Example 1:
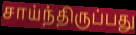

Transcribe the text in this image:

சாய்ந்திருப்பது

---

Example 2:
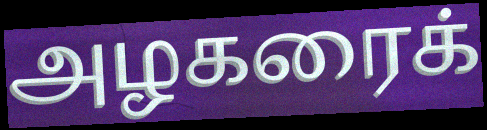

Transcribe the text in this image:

அழகரைக்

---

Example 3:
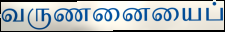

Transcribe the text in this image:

வருணனையைப்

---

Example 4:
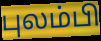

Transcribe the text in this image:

புலம்பி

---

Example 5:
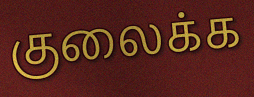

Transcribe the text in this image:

குலைக்க